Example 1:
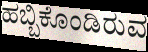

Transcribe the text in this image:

ಹಬ್ಬಿಕೊಂಡಿರುವ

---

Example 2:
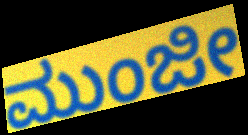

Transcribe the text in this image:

ಮುಂಜೀ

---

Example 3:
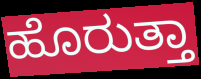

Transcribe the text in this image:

ಹೊರುತ್ತಾ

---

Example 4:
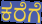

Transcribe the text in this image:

ಕರೆಗೆ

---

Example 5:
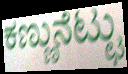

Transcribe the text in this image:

ಕಣ್ಣುನೆಟ್ಟು